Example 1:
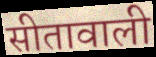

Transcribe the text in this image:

सीतावाली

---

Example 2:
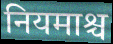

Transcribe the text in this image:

नियमाश्च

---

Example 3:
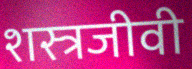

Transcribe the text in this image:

शस्त्रजीवी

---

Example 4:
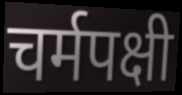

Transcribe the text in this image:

चर्मपक्षी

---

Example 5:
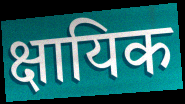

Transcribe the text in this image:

क्षायिक